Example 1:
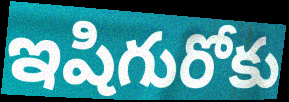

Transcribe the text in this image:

ఇషిగురోకు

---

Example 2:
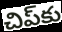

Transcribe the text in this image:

చిప్‌కు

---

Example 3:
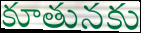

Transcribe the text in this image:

కూతునకు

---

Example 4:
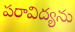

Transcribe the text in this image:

పరావిద్యను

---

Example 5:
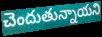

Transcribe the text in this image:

చెందుతున్నాయని